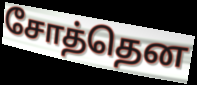
சோத்தென